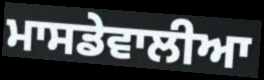
ਮਾਸਡੇਵਾਲੀਆ